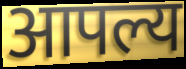
आपल्य